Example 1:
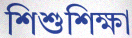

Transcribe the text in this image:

শিশুশিক্ষা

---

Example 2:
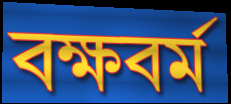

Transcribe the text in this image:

বক্ষবর্ম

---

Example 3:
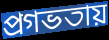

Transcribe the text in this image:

প্রগভতায়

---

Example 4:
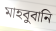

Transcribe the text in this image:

মাহবুবানি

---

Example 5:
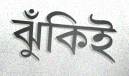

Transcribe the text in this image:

ঝুঁকিই